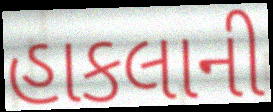
હાકલાની